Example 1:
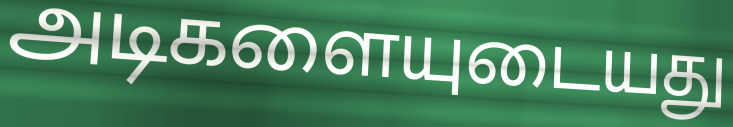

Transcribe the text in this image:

அடிகளையுடையது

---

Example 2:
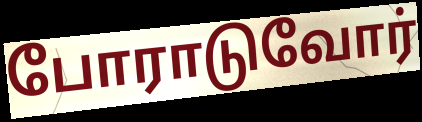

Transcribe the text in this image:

போராடுவோர்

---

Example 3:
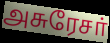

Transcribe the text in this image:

அசுரேசர்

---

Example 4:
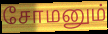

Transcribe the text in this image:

சோமனும்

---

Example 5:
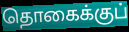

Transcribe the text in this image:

தொகைக்குப்